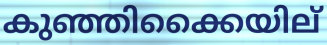
കുഞ്ഞിക്കൈയില്